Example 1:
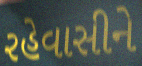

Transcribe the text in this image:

રહેવાસીને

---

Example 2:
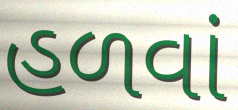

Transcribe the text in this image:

હળવાં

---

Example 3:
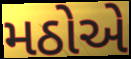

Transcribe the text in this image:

મઠોએ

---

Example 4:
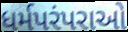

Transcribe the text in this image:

ધર્મપરંપરાઓ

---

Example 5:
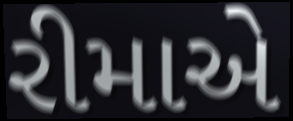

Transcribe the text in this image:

રીમાએ